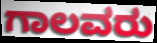
ಗಾಲವರು